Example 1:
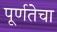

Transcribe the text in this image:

पूर्णतेचा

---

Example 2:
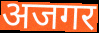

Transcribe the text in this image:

अजगर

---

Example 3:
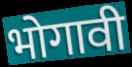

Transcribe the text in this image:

भोगावी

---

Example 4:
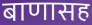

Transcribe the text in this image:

बाणासह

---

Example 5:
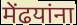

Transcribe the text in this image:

मेंढयांना